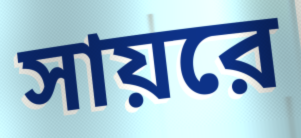
সায়রে